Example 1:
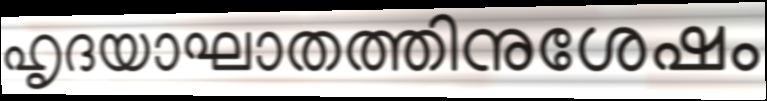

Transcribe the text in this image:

ഹൃദയാഘാതത്തിനുശേഷം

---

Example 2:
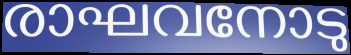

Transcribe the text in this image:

രാഘവനോടു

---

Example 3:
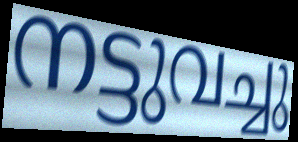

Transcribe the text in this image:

നട്ടുവച്ചു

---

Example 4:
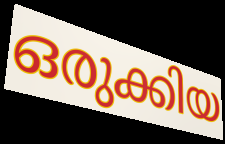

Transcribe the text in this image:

ഒരുക്കിയ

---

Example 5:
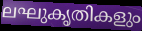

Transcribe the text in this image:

ലഘുകൃതികളും